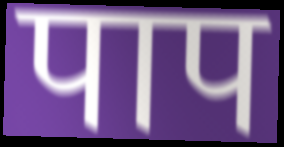
पाप